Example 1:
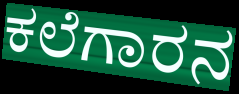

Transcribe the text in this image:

ಕಲೆಗಾರನ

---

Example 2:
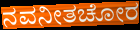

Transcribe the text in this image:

ನವನೀತಚೋರ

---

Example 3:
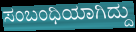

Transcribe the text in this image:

ಸಂಬಂಧಿಯಾಗಿದ್ದು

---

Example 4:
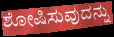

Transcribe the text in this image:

ಶೋಷಿಸುವುದನ್ನು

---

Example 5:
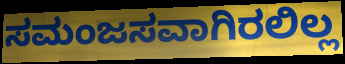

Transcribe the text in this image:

ಸಮಂಜಸವಾಗಿರಲಿಲ್ಲ